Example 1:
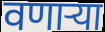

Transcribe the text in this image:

वणाऱ्या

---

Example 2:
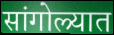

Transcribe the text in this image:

सांगोल्यात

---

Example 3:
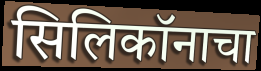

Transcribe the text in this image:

सिलिकॉनाचा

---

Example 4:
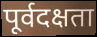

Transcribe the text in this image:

पूर्वदक्षता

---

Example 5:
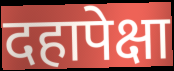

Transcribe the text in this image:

दहापेक्षा